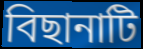
বিছানাটি